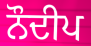
ਨੌਦੀਪ